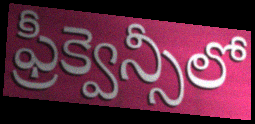
ఫ్రీక్వెన్సీలో